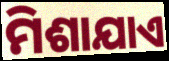
ମିଶାଯାଏ